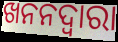
ଖନନଦ୍ୱାରା